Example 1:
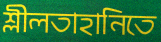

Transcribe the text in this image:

শ্লীলতাহানিতে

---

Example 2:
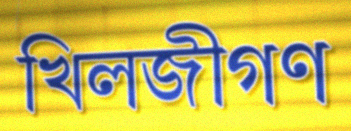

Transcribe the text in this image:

খিলজীগণ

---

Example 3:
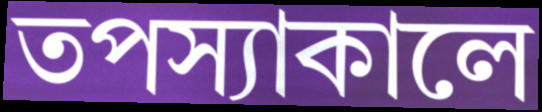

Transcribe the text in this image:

তপস্যাকালে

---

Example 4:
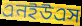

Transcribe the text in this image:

এনইউএস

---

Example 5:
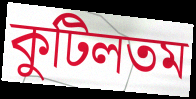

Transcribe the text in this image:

কুটিলতম